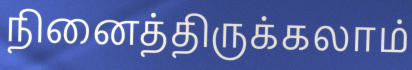
நினைத்திருக்கலாம்